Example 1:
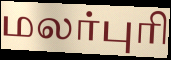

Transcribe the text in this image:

மலர்புரி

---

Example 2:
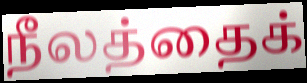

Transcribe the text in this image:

நீலத்தைக்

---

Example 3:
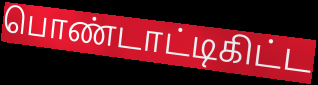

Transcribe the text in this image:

பொண்டாட்டிகிட்ட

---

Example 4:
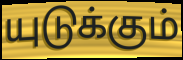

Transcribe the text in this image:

யுடுக்கும்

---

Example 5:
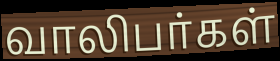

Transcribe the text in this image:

வாலிபர்கள்